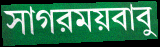
সাগরময়বাবু